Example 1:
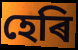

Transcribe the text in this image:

হেৰি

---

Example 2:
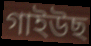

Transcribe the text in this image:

গাইউছ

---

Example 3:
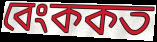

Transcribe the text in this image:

বেংককত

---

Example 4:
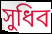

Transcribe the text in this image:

সুধিব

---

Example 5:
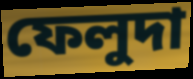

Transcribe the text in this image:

ফেলুদা